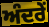
ਅੰਦਰੇਂ